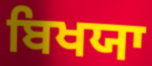
ਬਿਖਯਾ